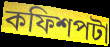
কফিশপটা